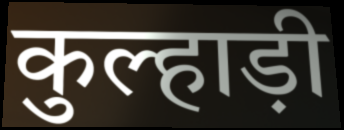
कुल्‍हाड़ी